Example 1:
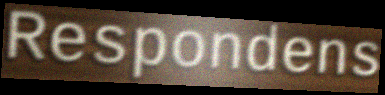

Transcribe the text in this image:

Respondens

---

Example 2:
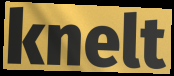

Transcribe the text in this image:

knelt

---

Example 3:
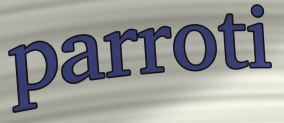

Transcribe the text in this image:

parroti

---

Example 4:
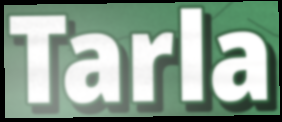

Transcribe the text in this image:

Tarla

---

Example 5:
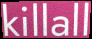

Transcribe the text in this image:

killall